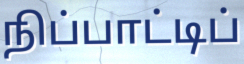
நிப்பாட்டிப்